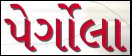
પેર્ગોલા